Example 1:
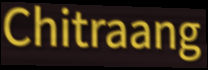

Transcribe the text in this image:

Chitraang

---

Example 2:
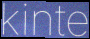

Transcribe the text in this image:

kinte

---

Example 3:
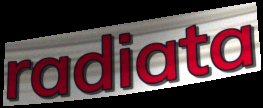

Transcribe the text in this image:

radiata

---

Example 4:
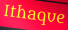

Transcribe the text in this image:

Ithaque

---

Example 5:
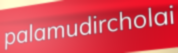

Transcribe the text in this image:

palamudircholai